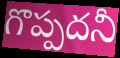
గొప్పదనీ